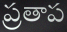
ప్రతాప